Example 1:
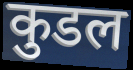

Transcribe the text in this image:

कुडल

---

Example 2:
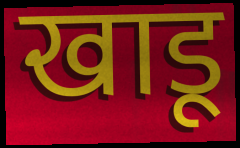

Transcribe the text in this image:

खाडू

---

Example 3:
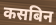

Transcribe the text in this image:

कसबिन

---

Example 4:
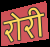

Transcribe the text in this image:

रोरी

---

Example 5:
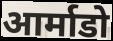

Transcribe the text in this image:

आर्माडो